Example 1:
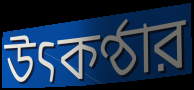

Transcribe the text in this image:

উৎকণ্ঠার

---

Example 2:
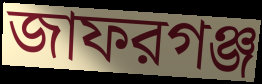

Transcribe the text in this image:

জাফরগঞ্জ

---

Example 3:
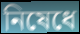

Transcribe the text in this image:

নিষেধে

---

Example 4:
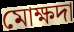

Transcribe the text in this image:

মোক্ষদা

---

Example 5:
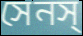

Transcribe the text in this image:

সেনস্